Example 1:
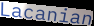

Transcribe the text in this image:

Lacanian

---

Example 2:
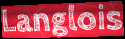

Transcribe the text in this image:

Langlois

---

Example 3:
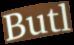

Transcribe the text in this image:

Butl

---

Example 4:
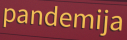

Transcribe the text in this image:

pandemija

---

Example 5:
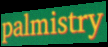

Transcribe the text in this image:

palmistry